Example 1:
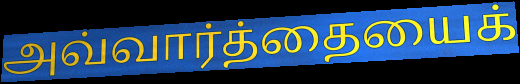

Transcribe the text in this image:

அவ்வார்த்தையைக்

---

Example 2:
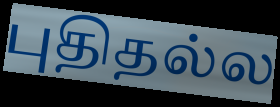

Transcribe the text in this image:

புதிதல்ல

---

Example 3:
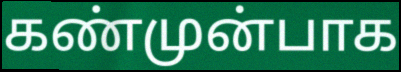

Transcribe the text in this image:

கண்முன்பாக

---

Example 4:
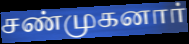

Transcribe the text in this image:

சண்முகனார்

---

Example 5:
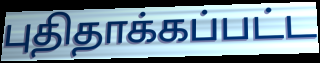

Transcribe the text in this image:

புதிதாக்கப்பட்ட